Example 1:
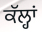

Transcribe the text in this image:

ਕੱਲ੍ਹਾਂ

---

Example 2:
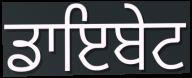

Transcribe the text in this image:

ਡਾਇਬੇਟ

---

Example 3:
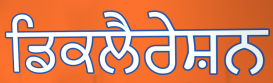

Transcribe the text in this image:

ਡਿਕਲੈਰੇਸ਼ਨ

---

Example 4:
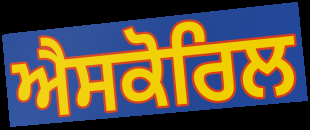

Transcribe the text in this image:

ਐਸਕੋਰਿਲ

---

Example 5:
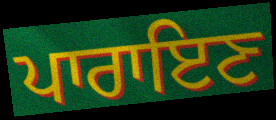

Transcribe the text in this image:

ਪਾਰਾਇਣ